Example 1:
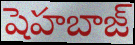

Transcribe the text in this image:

షెహబాజ్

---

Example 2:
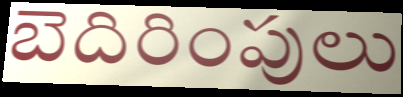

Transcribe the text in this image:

బెదిరింపులు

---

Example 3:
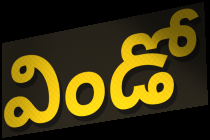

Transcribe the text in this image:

విండో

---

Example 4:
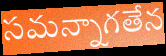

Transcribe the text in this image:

సమన్నాగతేన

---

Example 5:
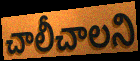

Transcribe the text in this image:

చాలీచాలని